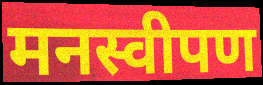
मनस्वीपण